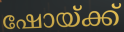
ഷോയ്ക്ക്